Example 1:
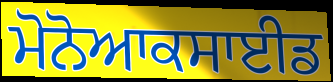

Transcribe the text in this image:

ਮੋਨੋਆਕਸਾਈਡ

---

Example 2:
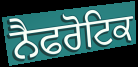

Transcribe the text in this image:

ਨੈਫਰੋਟਿਕ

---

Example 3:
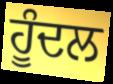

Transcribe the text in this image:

ਹੂੰਦਲ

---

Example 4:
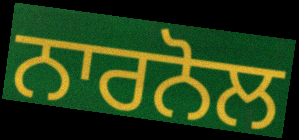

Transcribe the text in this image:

ਨਾਰਨੋਲ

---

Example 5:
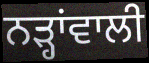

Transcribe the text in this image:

ਨੜ੍ਹਾਂਵਾਲੀ